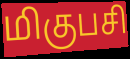
மிகுபசி